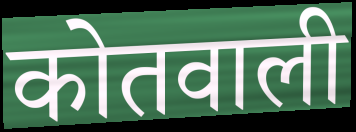
कोतवाली